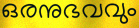
ഒരനുഭവവും